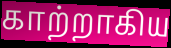
காற்றாகிய